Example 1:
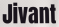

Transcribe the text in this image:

Jivant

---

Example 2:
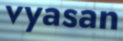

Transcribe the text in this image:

vyasan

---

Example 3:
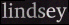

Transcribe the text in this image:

lindsey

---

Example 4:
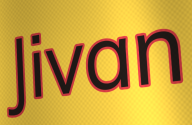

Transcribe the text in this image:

Jivan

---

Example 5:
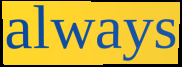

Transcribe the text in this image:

always